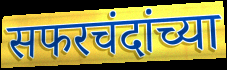
सफरचंदांच्या